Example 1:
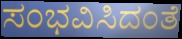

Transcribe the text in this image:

ಸಂಭವಿಸಿದಂತೆ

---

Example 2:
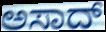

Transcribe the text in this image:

ಅಸಾದ್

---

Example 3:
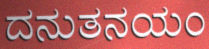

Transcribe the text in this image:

ದನುತನಯಂ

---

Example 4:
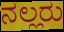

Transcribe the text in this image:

ನಲ್ಲರು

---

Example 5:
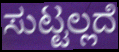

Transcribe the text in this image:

ಸುಟ್ಟಲ್ಲದೆ